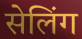
सेलिंग